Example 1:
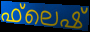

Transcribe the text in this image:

ഫ്‌ലെഷ്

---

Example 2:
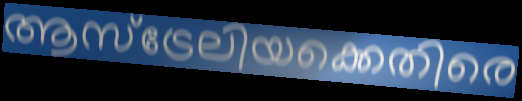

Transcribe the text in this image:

ആസ്ട്രേലിയക്കെതിരെ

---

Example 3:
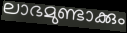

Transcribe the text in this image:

ലാഭമുണ്ടാക്കും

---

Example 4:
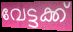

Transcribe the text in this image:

വേട്ടക്ക്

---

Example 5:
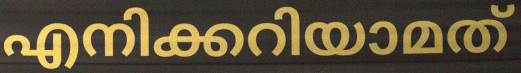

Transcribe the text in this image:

എനിക്കറിയാമത്